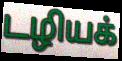
டழியக்